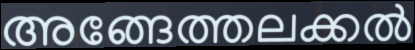
അങ്ങേത്തലക്കൽ